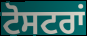
ਟੋਸਟਰਾਂ